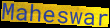
Maheswar